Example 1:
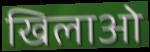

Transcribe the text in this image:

खिलाओ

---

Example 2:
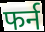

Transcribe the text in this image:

फर्न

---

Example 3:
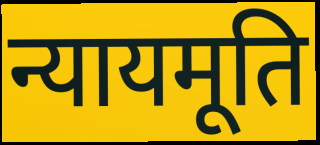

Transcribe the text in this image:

न्यायमूति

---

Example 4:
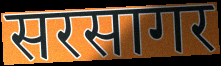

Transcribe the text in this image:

सरसागर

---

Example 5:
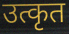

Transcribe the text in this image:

उत्कृत